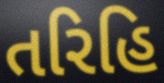
તરિહિ